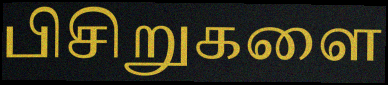
பிசிறுகளை